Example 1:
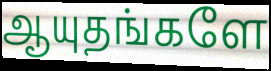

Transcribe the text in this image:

ஆயுதங்களே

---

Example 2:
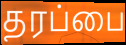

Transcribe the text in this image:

தரப்பை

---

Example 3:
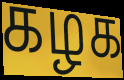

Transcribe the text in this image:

கழக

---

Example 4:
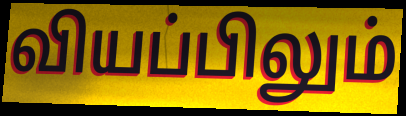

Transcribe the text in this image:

வியப்பிலும்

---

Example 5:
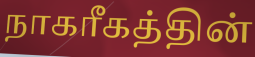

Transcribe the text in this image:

நாகரீகத்தின்